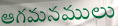
ఆగమనములు